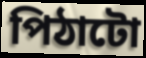
পিঠাটো